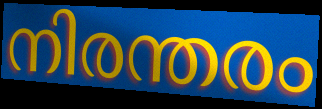
നിരന്തരം